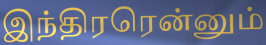
இந்திரரென்னும்